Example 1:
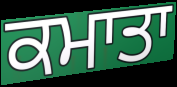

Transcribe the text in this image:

ਕਮਾਤਾ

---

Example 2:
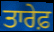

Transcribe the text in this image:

ਤਾਰੇਫ਼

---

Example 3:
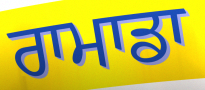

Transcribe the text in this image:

ਰਾਮਾਡਾ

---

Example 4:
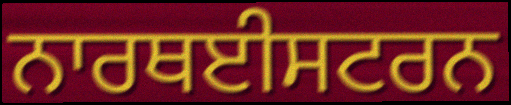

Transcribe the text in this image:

ਨਾਰਥਈਸਟਰਨ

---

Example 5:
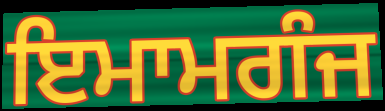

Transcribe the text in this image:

ਇਮਾਮਗੰਜ